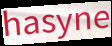
hasyne